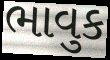
ભાવુક